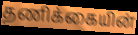
தணிக்கையின்